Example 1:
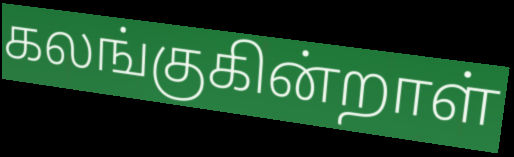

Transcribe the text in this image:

கலங்குகின்றாள்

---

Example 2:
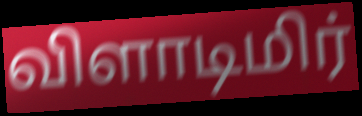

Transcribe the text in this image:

விளாடிமிர்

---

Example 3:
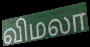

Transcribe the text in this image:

விமலா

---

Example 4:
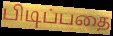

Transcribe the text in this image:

பிடிப்பதை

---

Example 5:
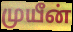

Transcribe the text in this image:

முயீன்